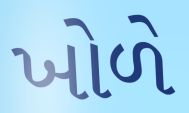
ખોળે